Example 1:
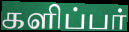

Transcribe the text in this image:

களிப்பர்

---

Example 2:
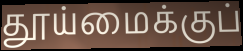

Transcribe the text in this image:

தூய்மைக்குப்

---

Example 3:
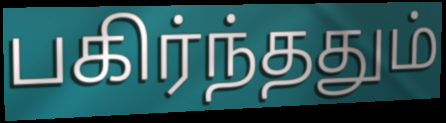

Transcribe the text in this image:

பகிர்ந்ததும்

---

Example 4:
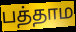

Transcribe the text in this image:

பத்தாம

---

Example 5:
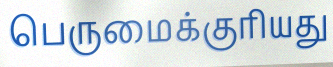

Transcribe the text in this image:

பெருமைக்குரியது